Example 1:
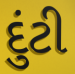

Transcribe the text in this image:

દુંટી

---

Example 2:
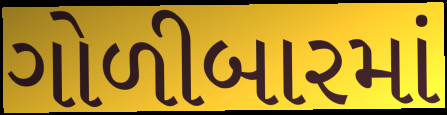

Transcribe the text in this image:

ગોળીબારમાં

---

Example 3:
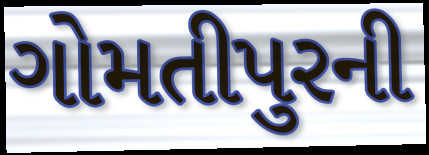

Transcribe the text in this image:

ગોમતીપુરની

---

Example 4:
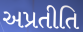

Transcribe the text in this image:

અપ્રતીતિ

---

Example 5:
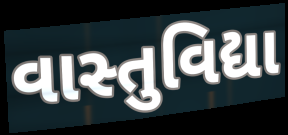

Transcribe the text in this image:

વાસ્તુવિદ્યા